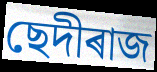
ছেদীৰাজ